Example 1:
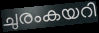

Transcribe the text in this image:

ചുരംകയറി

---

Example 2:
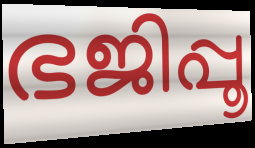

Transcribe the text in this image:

ഭജിപ്പൂ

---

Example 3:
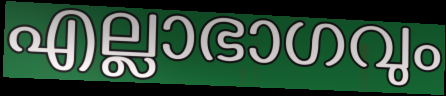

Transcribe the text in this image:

എല്ലാഭാഗവും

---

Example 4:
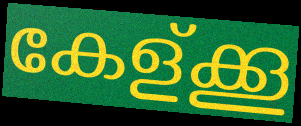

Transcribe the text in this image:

കേള്ക്കൂ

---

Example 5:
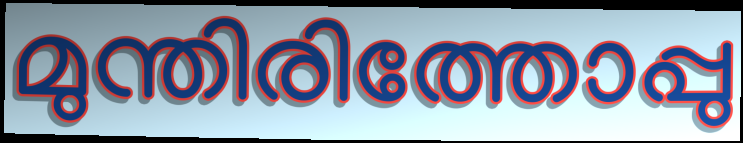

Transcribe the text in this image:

മുന്തിരിത്തോപ്പു